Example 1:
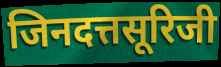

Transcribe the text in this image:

जिनदत्तसूरिजी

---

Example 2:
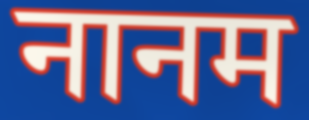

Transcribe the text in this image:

नानम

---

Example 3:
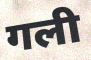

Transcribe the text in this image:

गली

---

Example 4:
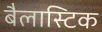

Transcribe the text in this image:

बैलास्टिक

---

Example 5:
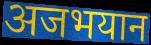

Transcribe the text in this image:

अजभयान